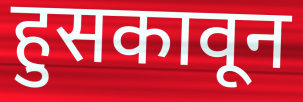
हुसकावून